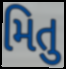
મિતુ